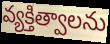
వ్యక్తిత్వాలను